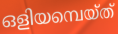
ഒളിയമ്പെയ്ത്